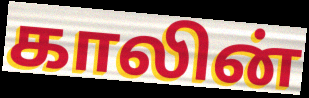
காலின்